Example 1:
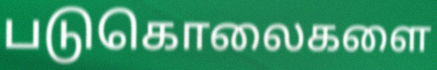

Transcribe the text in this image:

படுகொலைகளை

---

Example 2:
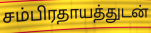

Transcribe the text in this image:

சம்பிரதாயத்துடன்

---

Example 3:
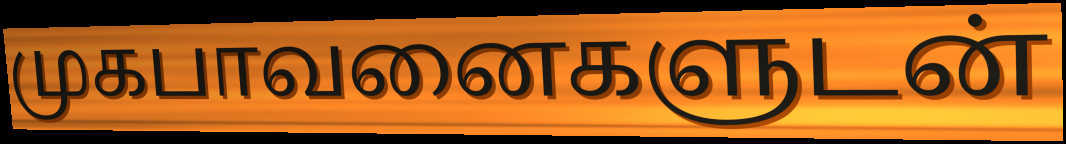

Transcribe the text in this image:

முகபாவனைகளுடன்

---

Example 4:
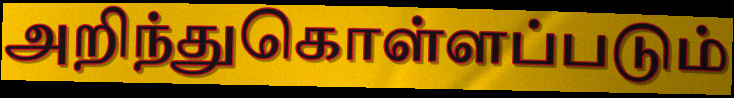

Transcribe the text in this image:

அறிந்துகொள்ளப்படும்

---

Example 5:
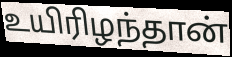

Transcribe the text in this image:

உயிரிழந்தான்